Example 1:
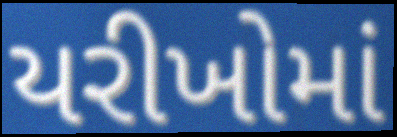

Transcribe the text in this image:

યરીખોમાં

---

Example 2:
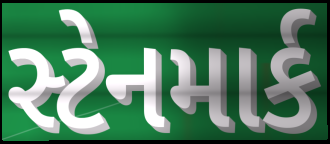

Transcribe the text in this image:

સ્ટેનમાર્ક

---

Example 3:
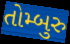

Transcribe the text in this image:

તોમ્બુરુ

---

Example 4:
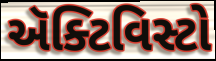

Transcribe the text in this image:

ઍક્ટિવિસ્ટો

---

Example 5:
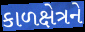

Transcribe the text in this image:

કાળક્ષેત્રને